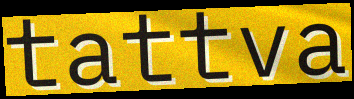
tattva